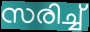
സരിച്ച്